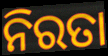
ନିରତା